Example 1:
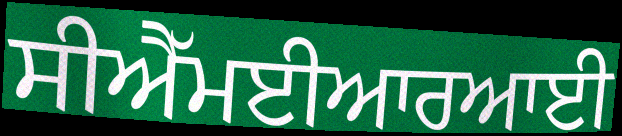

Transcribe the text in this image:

ਸੀਐੱਮਈਆਰਆਈ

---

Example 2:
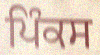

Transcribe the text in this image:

ਪਿੰਕਸ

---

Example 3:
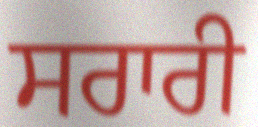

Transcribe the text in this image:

ਸਰਾਰੀ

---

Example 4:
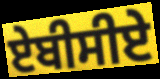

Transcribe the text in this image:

ਏਬੀਸੀਏ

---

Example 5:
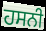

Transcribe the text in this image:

ਹਸਨੀ